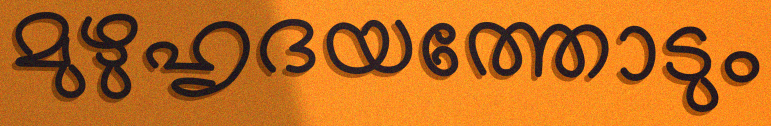
മുഴുഹൃദയത്തോടും